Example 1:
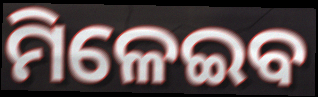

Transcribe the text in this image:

ମିଳେଇବ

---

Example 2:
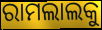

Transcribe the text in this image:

ରାମଲାଲକୁ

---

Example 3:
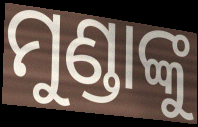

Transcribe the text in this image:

ମୁଣ୍ଡାଙ୍କୁ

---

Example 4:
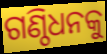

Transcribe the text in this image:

ଗଣ୍ଠିଧନକୁ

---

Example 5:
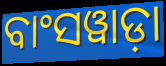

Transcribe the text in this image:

ବାଂସୱାଡ଼ା